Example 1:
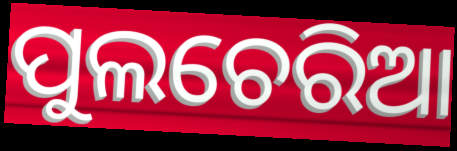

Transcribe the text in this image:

ପୁଲଚେରିଆ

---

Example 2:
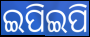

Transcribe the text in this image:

ଇପିଇପି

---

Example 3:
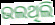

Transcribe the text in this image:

ଭଲଥିଲି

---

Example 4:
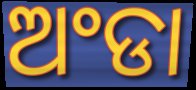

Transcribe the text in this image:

ଅଂଡା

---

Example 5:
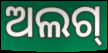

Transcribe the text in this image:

ଅଲଗ୍